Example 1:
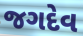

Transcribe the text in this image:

જગદેવ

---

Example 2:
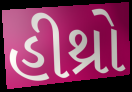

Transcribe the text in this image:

હીથ્રો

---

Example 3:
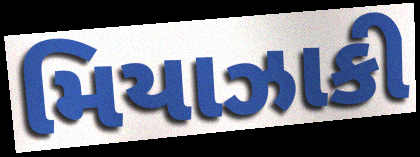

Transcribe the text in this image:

મિયાઝાકી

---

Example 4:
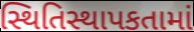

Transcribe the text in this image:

સ્થિતિસ્થાપકતામાં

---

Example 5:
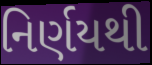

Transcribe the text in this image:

નિર્ણયથી